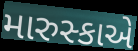
મારુસ્કાએ